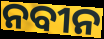
ନବୀନ